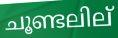
ചൂണ്ടലില്